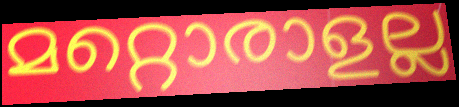
മറ്റൊരാളല്ല